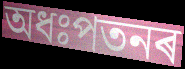
অধঃপতনৰ